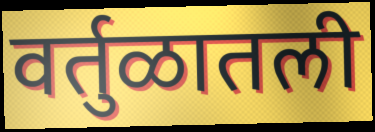
वर्तुळातली